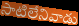
సాటిలేనివాడు